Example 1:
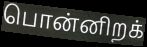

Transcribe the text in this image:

பொன்னிறக்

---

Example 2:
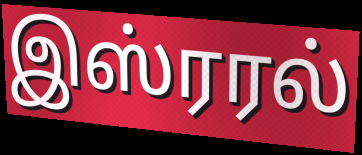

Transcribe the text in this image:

இஸ்ரரல்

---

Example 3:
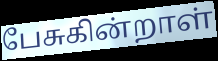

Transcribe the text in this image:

பேசுகின்றாள்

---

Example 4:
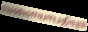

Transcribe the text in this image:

வளையாபதியும்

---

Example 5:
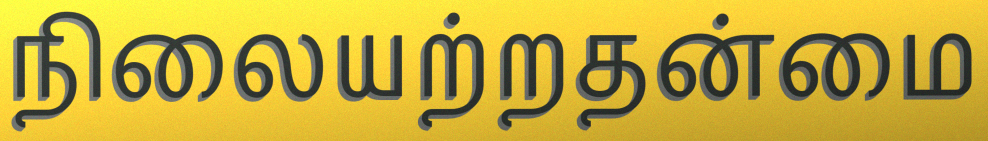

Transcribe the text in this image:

நிலையற்றதன்மை